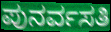
ಪುನರ್ವಸತಿ